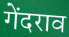
गेंदराव